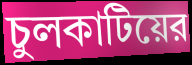
চুলকাটিয়ের